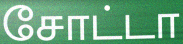
சோட்டா